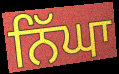
ਨਿੱਘਾ